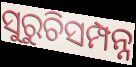
ସୁରୁଚିସମ୍ପନ୍ନ